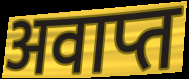
अवाप्त